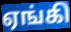
ஏங்கி